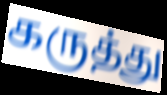
கருத்து